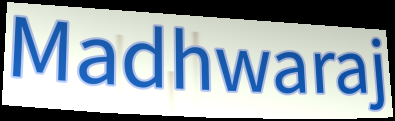
Madhwaraj